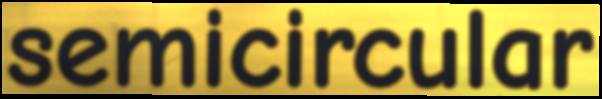
semicircular